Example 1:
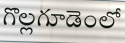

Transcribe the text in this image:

గొల్లగూడెంలో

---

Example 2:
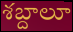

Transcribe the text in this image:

శబ్దాలూ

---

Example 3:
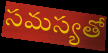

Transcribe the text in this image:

సమస్యతో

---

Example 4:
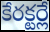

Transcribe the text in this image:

కేరక్టర్లే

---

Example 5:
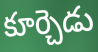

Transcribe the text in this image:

కూర్చెడు